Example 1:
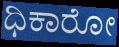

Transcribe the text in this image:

ಧಿಕಾರೋ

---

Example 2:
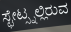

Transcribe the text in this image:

ಸ್ಟೇಟ್ಸ್ನಲ್ಲಿರುವ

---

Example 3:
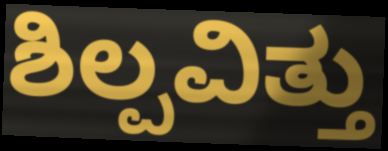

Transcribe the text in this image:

ಶಿಲ್ಪವಿತ್ತು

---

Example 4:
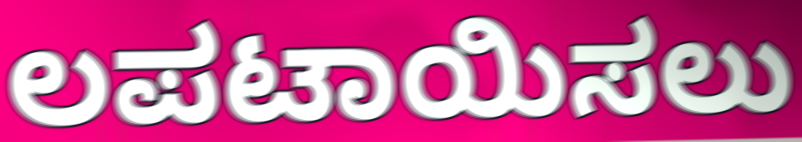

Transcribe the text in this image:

ಲಪಟಾಯಿಸಲು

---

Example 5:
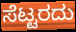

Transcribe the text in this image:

ಸೆಟ್ಟರದು